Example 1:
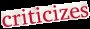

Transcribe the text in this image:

criticizes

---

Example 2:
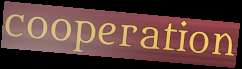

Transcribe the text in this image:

cooperation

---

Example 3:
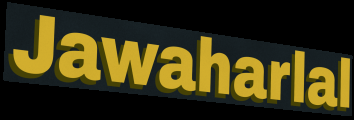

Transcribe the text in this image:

Jawaharlal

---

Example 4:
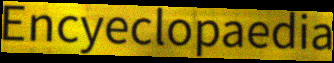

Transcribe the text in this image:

Encyeclopaedia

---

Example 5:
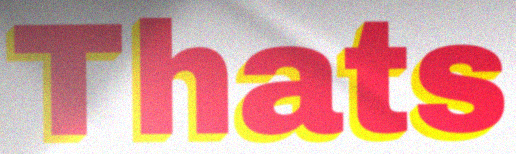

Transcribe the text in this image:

Thats